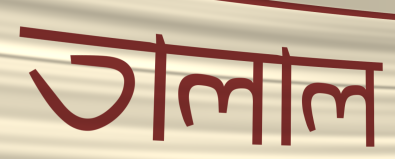
তালাল